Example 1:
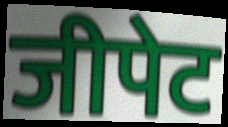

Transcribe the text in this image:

जीपेट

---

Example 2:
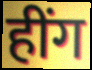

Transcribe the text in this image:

हींग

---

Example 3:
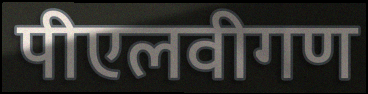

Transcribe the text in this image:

पीएलवीगण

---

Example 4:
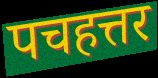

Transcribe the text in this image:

पचहत्तर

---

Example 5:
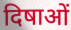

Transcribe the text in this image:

दिषाओं